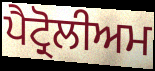
ਪੈਟ੍ਰੋਲੀਅਮ